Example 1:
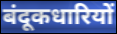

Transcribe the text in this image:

बंदूकधारियों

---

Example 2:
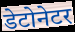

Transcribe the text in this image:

डेटोनेटर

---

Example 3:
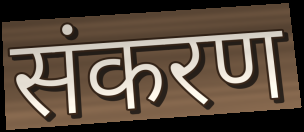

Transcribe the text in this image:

संकरण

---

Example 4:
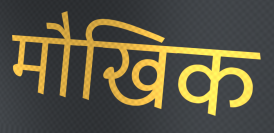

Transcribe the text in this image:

मौखिक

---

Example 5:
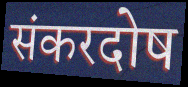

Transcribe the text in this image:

संकरदोष